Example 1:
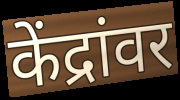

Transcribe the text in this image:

केंद्रांवर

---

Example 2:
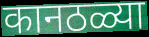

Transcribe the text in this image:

कानठळ्या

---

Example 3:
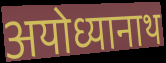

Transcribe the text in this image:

अयोध्यानाथ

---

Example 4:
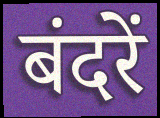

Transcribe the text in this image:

बंदरें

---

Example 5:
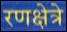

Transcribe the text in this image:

रणक्षेत्रे